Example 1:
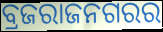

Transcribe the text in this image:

ବ୍ରଜରାଜନଗରର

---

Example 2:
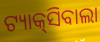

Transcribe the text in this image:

ଟ୍ୟାକ୍‌ସିବାଲା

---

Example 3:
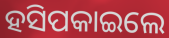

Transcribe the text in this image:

ହସିପକାଇଲେ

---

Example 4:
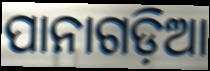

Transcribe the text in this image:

ପାନାଗଡ଼ିଆ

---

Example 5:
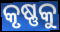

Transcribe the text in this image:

କୃଷ୍ଣକୁ